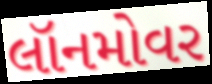
લૉનમોવર